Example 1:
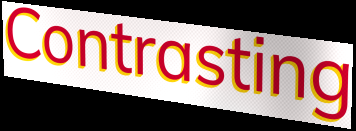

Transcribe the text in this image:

Contrasting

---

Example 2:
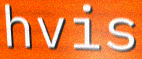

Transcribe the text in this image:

hvis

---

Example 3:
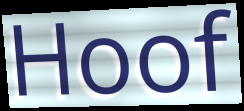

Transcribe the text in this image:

Hoof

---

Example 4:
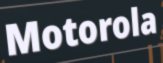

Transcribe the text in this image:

Motorola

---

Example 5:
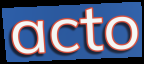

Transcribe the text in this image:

acto